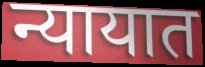
न्यायात